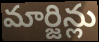
మార్జిన్లు